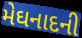
મેઘનાદની